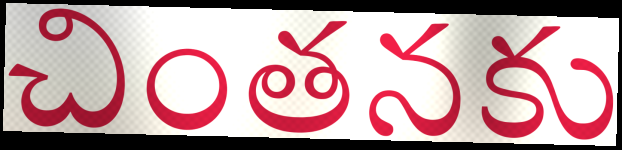
చింతనకు